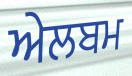
ਅੇਲਬਮ